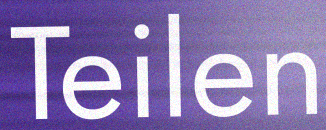
Teilen